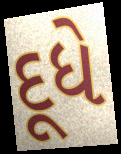
દૂધે